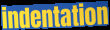
indentation